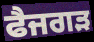
ਫੈਜਗੜ